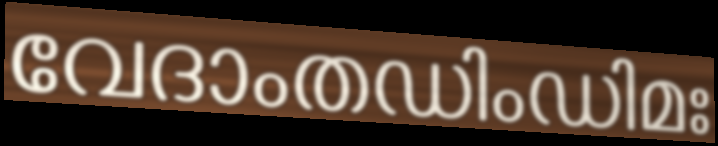
വേദാംതഡിംഡിമഃ